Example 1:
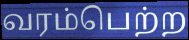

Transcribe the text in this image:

வரம்பெற்ற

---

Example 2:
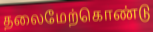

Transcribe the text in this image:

தலைமேற்கொண்டு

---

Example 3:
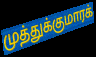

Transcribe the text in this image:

முத்துக்குமாரக்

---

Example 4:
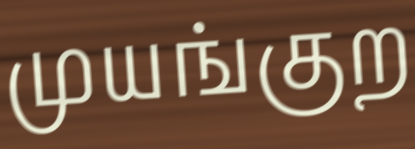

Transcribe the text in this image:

முயங்குற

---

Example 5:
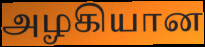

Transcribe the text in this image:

அழகியான